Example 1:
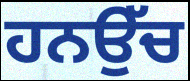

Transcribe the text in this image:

ਹਨਉੱਚ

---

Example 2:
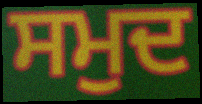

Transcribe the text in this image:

ਸਮੁਦ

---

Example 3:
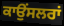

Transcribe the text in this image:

ਕਾਉਂਸਲਰਾਂ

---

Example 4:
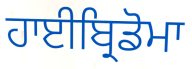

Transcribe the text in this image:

ਹਾਈਬ੍ਰਿਡੋਮਾ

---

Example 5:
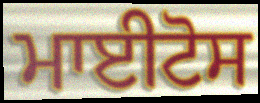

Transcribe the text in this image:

ਮਾਈਟੋਸ